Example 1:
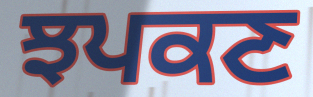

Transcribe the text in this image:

ਝਪਕਣ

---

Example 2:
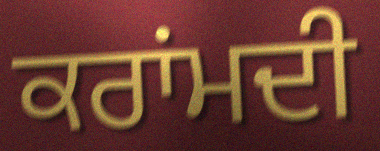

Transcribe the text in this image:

ਕਰਾਂਮਦੀ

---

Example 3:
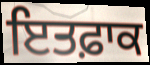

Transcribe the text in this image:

ਇਤਫ਼ਾਕ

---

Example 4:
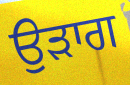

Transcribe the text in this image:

ਉੜਾਗ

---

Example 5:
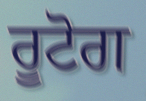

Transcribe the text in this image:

ਰੂਟੋਗ